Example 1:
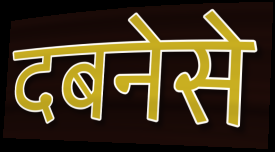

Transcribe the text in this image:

दबनेसे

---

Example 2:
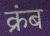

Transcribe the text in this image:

क्रंब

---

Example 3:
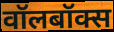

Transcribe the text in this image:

वॉलबॉक्स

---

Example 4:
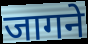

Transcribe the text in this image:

जागने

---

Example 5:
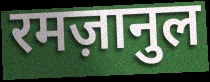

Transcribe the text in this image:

रमज़ानुल